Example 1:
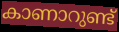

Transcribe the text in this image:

കാണാറുണ്ട്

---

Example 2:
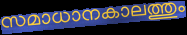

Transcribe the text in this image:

സമാധാനകാലത്തും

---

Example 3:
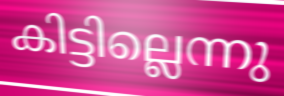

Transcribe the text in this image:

കിട്ടില്ലെന്നു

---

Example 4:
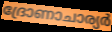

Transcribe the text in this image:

ദ്രോണാചാര്യർ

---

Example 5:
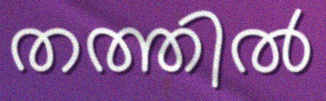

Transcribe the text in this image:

തത്തിൽ